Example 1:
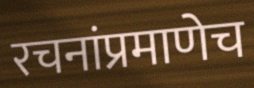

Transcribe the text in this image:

रचनांप्रमाणेच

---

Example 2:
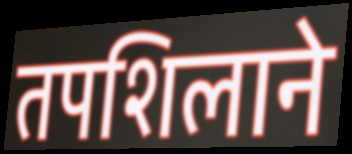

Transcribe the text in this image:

तपशिलाने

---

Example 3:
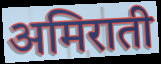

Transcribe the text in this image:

अमिराती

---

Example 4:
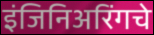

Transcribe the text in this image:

इंजिनिअरिंगचे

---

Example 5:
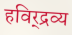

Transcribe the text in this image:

हविर्द्रव्य